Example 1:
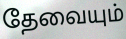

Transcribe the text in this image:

தேவையும்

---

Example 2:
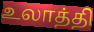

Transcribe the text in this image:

உலாத்தி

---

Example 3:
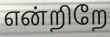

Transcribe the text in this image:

என்றிறே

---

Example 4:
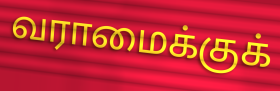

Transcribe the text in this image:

வராமைக்குக்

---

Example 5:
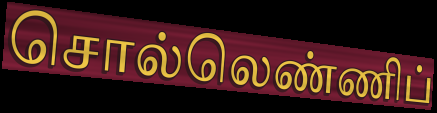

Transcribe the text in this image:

சொல்லெண்ணிப்